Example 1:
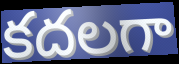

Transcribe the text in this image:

కదలగా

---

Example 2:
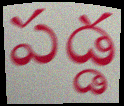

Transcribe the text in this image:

పడ్డ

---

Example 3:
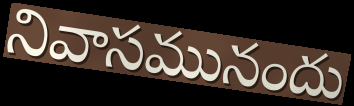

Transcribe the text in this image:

నివాసమునందు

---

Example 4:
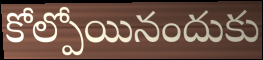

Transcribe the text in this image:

కోల్పోయినందుకు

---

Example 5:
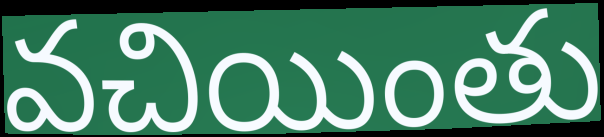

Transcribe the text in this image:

వచియింతు